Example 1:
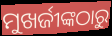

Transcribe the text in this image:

ମୁଖର୍ଜୀଙ୍କଠାରୁ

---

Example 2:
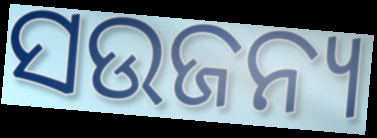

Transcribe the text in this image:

ସଉଜନ୍ୟ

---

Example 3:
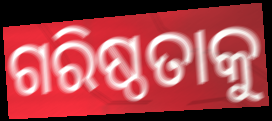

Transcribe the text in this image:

ଗରିଷ୍ଠତାକୁ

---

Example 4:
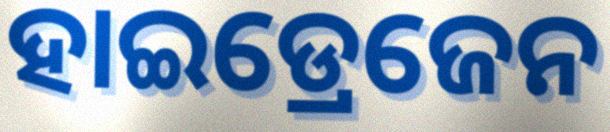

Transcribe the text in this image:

ହାଇଡ୍ରେଜେନ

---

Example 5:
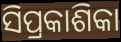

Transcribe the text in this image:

ସିପ୍ରକାଶିକା